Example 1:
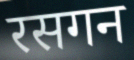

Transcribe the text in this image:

रसगन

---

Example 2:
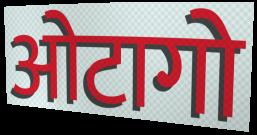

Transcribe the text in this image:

ओटागो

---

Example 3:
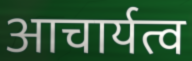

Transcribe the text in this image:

आचार्यत्व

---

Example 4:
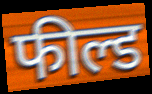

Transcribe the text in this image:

फील्‍ड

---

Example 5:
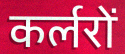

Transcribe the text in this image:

कर्लरों